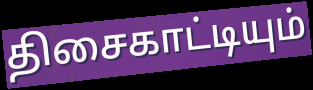
திசைகாட்டியும்